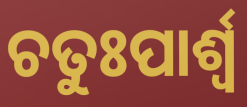
ଚତୁଃପାର୍ଶ୍ବ